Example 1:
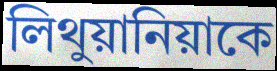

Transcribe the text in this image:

লিথুয়ানিয়াকে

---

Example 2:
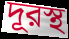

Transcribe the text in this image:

দূরস্থ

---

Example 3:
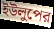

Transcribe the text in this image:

ইউলুপের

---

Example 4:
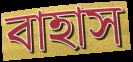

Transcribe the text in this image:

বাহাস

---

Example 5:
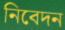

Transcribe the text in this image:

নিবেদন